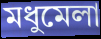
মধুমেলা